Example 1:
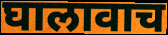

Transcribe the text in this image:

घालावाच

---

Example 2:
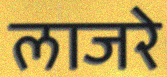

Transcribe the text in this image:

लाजरे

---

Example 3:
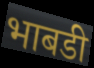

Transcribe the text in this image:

भाबडी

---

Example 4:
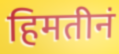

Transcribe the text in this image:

हिमतीनं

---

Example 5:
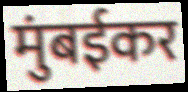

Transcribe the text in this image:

मुंबईकर